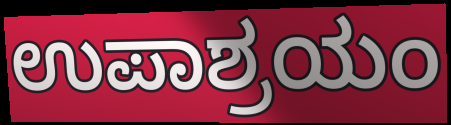
ಉಪಾಶ್ರಯಂ